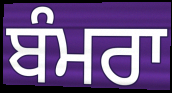
ਬੰਮਰਾ